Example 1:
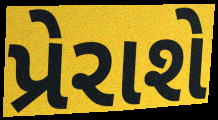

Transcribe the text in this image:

પ્રેરાશે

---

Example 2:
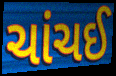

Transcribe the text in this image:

ચાંચઈ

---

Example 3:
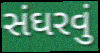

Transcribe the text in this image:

સંઘરવું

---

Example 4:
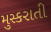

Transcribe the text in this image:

મુસ્કરાતી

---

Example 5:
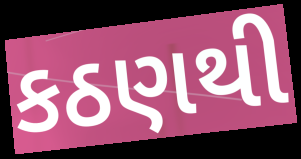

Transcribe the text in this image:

કઠણથી